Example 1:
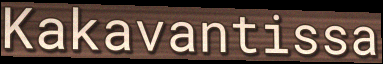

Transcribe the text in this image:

Kakavantissa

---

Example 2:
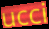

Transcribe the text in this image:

ucci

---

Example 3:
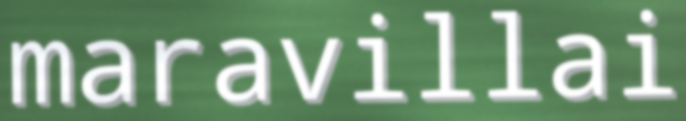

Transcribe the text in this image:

maravillai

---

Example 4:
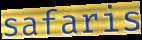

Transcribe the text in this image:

safaris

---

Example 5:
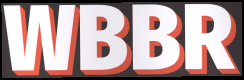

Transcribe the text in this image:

WBBR